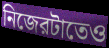
নিজেরটাতেও